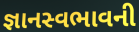
જ્ઞાનસ્વભાવની